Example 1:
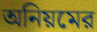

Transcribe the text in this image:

অনিয়মের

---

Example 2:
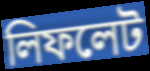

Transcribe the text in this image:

লিফলেট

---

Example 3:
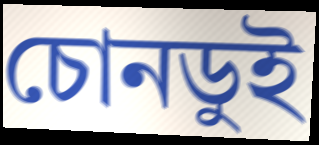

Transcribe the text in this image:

চোনডুই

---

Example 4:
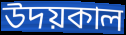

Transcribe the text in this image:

উদয়কাল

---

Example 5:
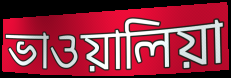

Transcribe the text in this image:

ভাওয়ালিয়া